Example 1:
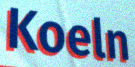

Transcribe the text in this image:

Koeln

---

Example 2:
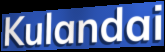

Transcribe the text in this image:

Kulandai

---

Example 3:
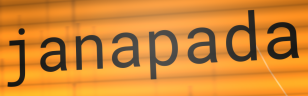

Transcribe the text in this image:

janapada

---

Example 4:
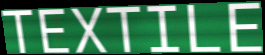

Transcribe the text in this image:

TEXTILE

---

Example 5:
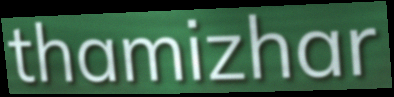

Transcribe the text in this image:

thamizhar